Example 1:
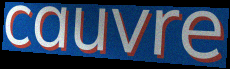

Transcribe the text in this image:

cauvre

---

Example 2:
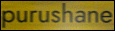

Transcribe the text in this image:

purushane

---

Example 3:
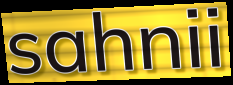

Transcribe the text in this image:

sahnii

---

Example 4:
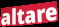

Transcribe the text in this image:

altare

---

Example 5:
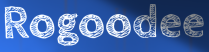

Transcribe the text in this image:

Rogoodee